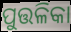
ପୁତ୍ତଳିକା